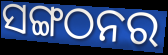
ସଙ୍ଗଠନର